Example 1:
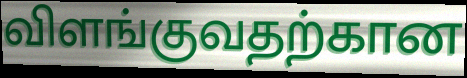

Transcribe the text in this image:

விளங்குவதற்கான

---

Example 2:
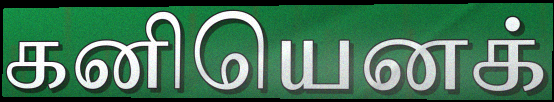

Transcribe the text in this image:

கனியெனக்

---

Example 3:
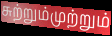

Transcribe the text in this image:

சுற்றும்முற்றும்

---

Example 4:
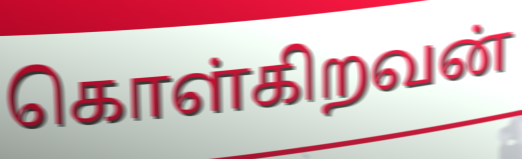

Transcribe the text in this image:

கொள்கிறவன்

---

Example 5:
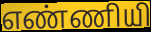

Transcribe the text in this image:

எண்ணியி